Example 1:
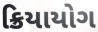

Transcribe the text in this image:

ક્રિયાયોગ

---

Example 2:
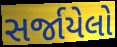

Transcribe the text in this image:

સર્જાયેલો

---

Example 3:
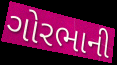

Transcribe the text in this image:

ગોરભાની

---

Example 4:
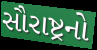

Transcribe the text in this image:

સૌરાષ્ટ્રનો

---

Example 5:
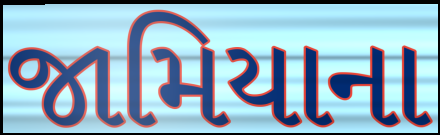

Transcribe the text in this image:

જામિયાના